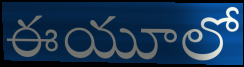
ఈయూలో